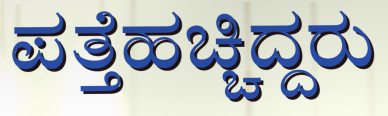
ಪತ್ತೆಹಚ್ಚಿದ್ದರು